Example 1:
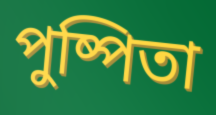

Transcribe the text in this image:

পুষ্পিতা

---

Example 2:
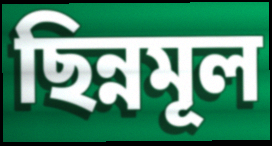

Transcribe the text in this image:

ছিন্নমূল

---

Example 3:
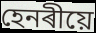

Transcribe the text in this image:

হেনৰীয়ে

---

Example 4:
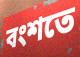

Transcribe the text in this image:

বংশতে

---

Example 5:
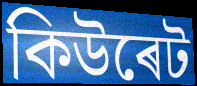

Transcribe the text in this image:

কিউৰেট